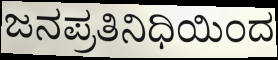
ಜನಪ್ರತಿನಿಧಿಯಿಂದ